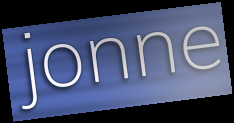
jonne